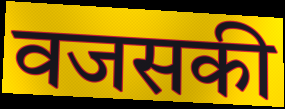
वजसकी